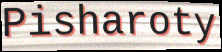
Pisharoty